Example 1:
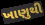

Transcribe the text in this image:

ખાણુથી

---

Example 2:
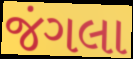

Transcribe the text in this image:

જંગલા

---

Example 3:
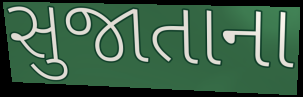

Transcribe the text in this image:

સુજાતાના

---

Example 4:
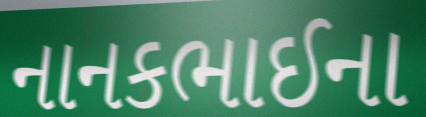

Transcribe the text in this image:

નાનકભાઈના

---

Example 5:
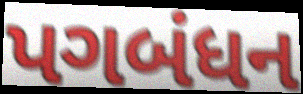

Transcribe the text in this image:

પગબંધન